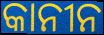
କାନୀନ